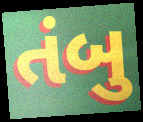
તંબુ